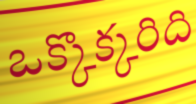
ఒక్కొక్కరిది